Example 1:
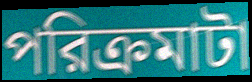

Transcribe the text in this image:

পরিক্রমাটা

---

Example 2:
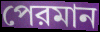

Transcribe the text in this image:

পেরমান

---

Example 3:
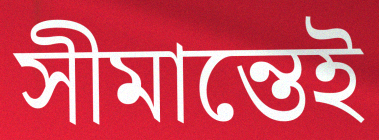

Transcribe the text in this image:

সীমান্তেই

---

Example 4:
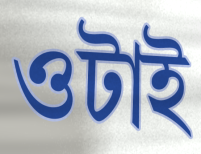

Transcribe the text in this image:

ওটাই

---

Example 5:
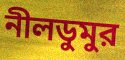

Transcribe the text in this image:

নীলডুমুর